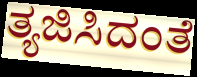
ತ್ಯಜಿಸಿದಂತೆ